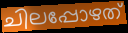
ചിലപ്പോഴത്